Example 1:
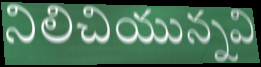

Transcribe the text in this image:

నిలిచియున్నవి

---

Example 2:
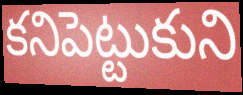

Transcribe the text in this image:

కనిపెట్టుకుని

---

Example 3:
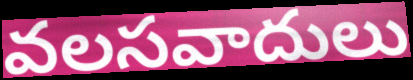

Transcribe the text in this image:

వలసవాదులు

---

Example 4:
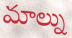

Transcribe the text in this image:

మాల్ను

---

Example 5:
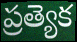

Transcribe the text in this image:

ప్రత్యెక